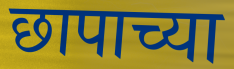
छापाच्या